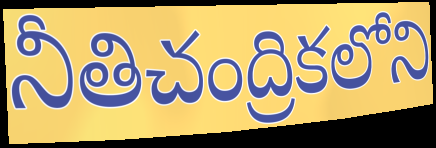
నీతిచంద్రికలోని